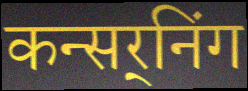
कन्सर्निंग